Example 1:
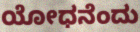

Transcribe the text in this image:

ಯೋಧನೆಂದು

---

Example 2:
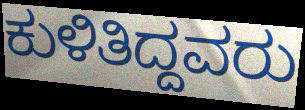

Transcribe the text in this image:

ಕುಳಿತಿದ್ದವರು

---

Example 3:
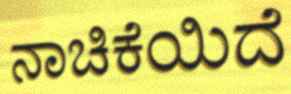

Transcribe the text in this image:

ನಾಚಿಕೆಯಿದೆ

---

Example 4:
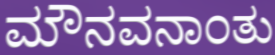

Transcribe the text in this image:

ಮೌನವನಾಂತು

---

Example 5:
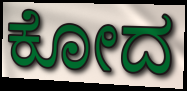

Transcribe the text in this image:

ಕೋದ